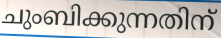
ചുംബിക്കുന്നതിന്